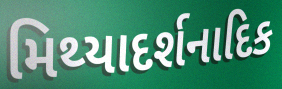
મિથ્યાદર્શનાદિક